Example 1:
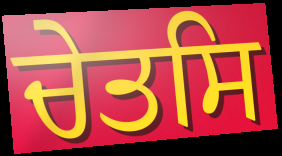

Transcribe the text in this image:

ਚੇਤਸਿ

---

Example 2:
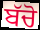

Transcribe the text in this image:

ਬੱਚੋ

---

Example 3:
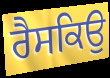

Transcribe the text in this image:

ਰੈਸਕਿਉ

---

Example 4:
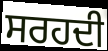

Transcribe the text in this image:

ਸਰਹਦੀ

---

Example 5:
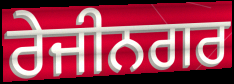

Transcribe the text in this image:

ਰੇਜੀਨਗਰ